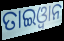
ତାଇଓ୍ୱାନ